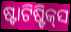
ଷ୍ଟାଟିଷ୍ଟିକ୍‍ସ